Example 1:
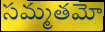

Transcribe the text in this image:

సమ్మతమో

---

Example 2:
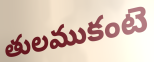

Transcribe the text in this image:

తులముకంటె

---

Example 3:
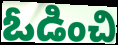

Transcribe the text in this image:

ఓడించి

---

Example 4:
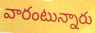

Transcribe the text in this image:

వారంటున్నారు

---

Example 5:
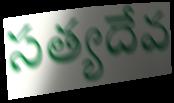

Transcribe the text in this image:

సత్యదేవ